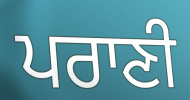
ਪਰਾਣੀ